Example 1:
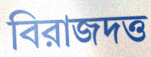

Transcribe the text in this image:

বিরাজদত্ত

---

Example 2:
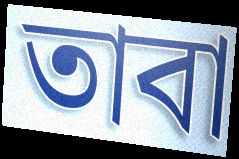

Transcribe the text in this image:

তাবা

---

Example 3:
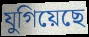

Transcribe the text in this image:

যুগিয়েছে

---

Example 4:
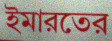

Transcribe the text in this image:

ইমারতের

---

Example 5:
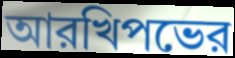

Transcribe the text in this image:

আরখিপভের